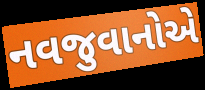
નવજુવાનોએ